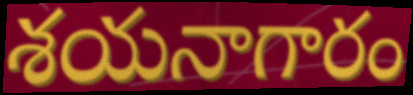
శయనాగారం